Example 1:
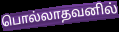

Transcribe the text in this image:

பொல்லாதவனில்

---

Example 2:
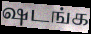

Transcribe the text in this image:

ஷடங்க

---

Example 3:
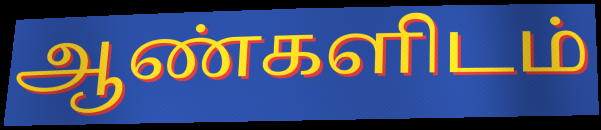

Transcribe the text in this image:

ஆண்களிடம்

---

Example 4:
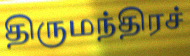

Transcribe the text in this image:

திருமந்திரச்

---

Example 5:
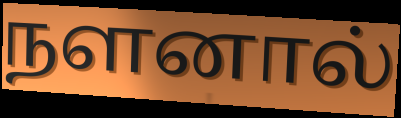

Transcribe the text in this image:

நளனால்